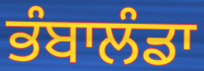
ਭੰਬਾਲੰਡਾ